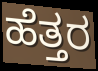
ಹೆತ್ತರ